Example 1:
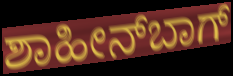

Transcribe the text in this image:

ಶಾಹೀನ್‌ಬಾಗ್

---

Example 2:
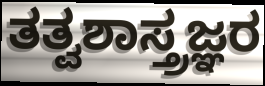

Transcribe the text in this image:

ತತ್ವಶಾಸ್ತ್ರಜ್ಞರ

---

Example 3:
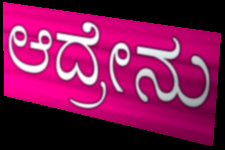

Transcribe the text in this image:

ಆದ್ರೇನು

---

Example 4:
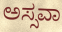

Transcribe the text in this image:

ಅಸ್ಸವಾ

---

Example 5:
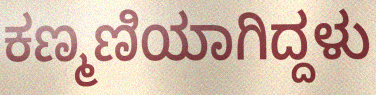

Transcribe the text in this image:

ಕಣ್ಮಣಿಯಾಗಿದ್ದಳು